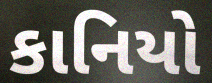
કાનિયો